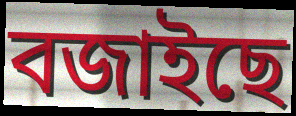
বজাইছে